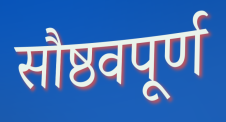
सौष्ठवपूर्ण